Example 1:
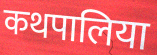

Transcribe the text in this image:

कथपालिया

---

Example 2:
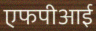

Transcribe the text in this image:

एफपीआई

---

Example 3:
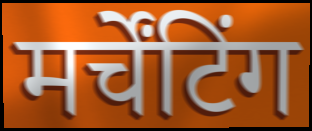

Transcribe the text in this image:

मर्चेंटिंग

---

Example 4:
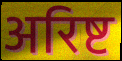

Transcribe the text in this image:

अरिष्ट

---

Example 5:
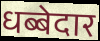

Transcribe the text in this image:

धब्बेदार